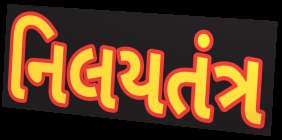
નિલયતંત્ર